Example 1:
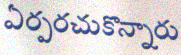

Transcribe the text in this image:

ఏర్పరచుకొన్నారు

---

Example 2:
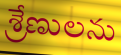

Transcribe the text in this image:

శ్రేణులను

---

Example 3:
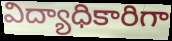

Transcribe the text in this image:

విద్యాధికారిగా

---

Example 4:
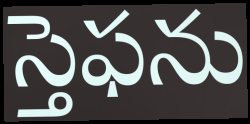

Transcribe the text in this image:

స్తెఫను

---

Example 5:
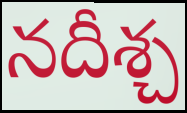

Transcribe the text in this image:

నదీశ్చ